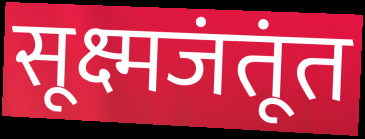
सूक्ष्मजंतूंत